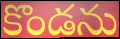
కొండను